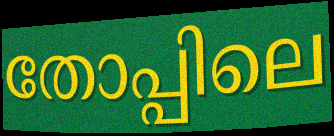
തോപ്പിലെ